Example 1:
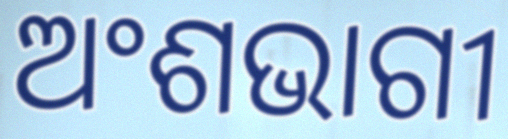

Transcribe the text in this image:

ଅଂଶଭାଗୀ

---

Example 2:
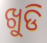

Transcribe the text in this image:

ଖୁଡି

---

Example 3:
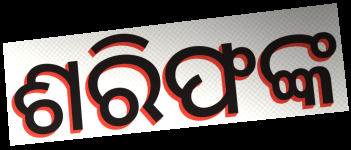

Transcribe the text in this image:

ଶରିଫଙ୍କ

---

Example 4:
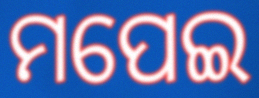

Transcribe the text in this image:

ମପେଇ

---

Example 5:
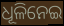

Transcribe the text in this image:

ଧୂଳିନେଇ